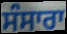
ਸੰਸਾਰਾ